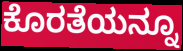
ಕೊರತೆಯನ್ನೂ